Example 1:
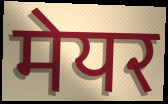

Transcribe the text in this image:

मेयर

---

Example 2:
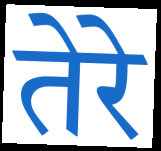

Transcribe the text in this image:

तेरे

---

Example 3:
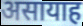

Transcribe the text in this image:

असायाह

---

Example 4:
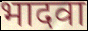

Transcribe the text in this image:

भादवा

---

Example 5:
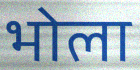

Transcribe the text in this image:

भोला